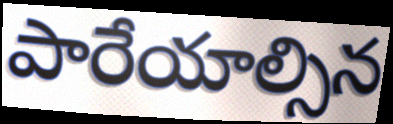
పారేయాల్సిన